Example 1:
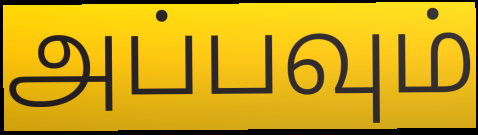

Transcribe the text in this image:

அப்பவும்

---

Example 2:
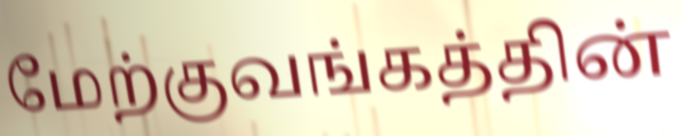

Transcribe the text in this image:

மேற்குவங்கத்தின்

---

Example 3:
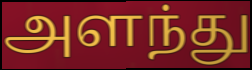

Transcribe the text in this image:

அளந்து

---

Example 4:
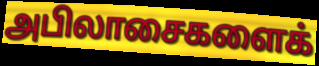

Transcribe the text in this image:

அபிலாசைகளைக்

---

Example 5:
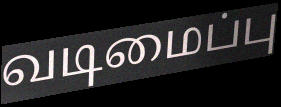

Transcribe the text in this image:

வடிமைப்பு